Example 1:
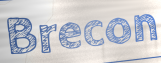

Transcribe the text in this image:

Brecon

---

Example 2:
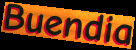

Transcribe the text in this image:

Buendia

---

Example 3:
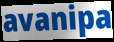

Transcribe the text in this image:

avanipa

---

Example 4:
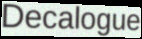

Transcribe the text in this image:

Decalogue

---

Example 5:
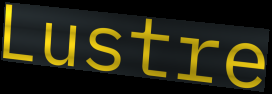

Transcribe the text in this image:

Lustre